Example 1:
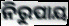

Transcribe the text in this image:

ନିରୁପାୟ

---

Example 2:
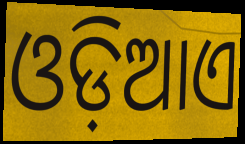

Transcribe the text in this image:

ଓଡ଼ିଆଏ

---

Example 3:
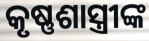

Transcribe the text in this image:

କୃଷ୍ଣଶାସ୍ତ୍ରୀଙ୍କ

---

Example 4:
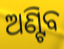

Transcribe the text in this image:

ଅଣ୍ଟିବ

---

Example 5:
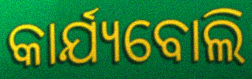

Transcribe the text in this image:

କାର୍ଯ୍ୟବୋଲି